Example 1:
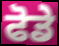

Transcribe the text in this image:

ਫੋਡੇ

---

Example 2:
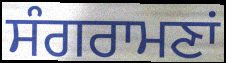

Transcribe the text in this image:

ਸੰਗਰਾਮਣਾਂ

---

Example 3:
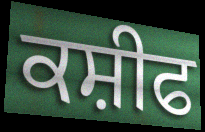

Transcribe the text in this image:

ਕਸ਼ੀਫ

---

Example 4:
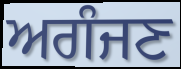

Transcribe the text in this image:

ਅਗੰਜਣ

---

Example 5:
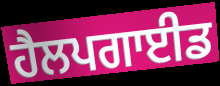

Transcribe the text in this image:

ਹੈਲਪਗਾਈਡ